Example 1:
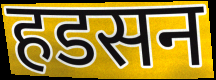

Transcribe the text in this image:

हडसन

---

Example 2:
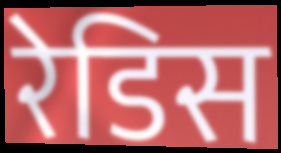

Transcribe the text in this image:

रेडिस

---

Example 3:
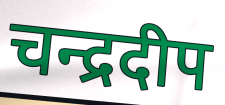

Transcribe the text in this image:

चन्द्रदीप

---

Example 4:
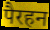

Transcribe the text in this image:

पैरहन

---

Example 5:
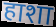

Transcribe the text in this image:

हाशा